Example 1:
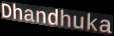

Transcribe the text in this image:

Dhandhuka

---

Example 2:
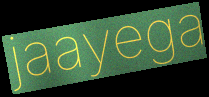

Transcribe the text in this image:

jaayega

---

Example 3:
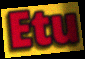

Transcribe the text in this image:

Etu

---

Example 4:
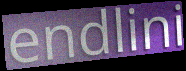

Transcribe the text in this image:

endlini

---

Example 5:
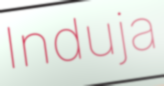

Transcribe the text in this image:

Induja